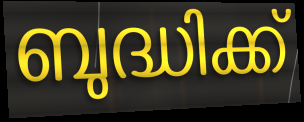
ബുദ്ധിക്ക്